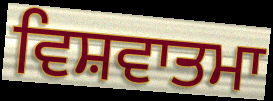
ਵਿਸ਼ਵਾਤਮਾ